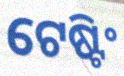
ଟେଷ୍ଟିଂ